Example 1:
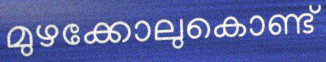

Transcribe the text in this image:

മുഴക്കോലുകൊണ്ട്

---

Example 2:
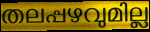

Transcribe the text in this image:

തലപ്പഴവുമില്ല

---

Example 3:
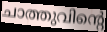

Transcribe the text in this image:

ചാത്തുവിന്റെ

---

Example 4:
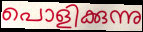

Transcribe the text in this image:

പൊളിക്കുന്നു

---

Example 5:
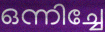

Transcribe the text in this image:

ഒന്നിച്ചേ